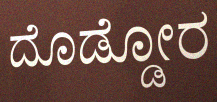
ದೊಡ್ಡೋರ